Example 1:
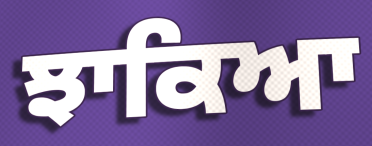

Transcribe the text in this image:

ਝਾਕਿਆ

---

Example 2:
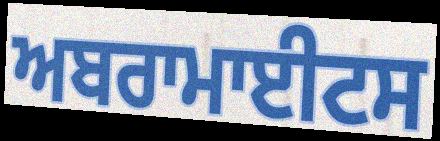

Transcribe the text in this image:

ਅਬਰਾਮਾਈਟਸ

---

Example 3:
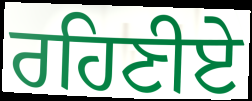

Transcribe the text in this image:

ਰਹਿਣੀਏ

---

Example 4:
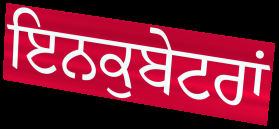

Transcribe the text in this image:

ਇਨਕੁਬੇਟਰਾਂ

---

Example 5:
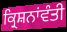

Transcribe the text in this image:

ਕ੍ਰਿਸ਼ਨਾਂਵੰਤੀ